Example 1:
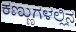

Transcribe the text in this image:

ಕಣ್ಣುಗಳಲ್ಲಿನ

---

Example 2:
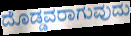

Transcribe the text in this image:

ದೊಡ್ಡವರಾಗುವುದು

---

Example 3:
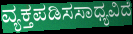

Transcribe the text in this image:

ವ್ಯಕ್ತಪಡಿಸಸಾಧ್ಯವಿದೆ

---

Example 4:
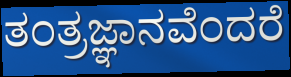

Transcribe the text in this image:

ತಂತ್ರಜ್ಞಾನವೆಂದರೆ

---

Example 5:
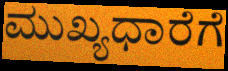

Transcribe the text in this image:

ಮುಖ್ಯಧಾರೆಗೆ